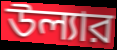
উল্যার